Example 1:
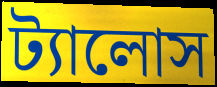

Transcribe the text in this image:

ট্যালোস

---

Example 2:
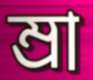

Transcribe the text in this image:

ম্রা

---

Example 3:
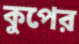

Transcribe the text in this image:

কুপের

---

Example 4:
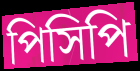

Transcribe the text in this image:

পিসিপি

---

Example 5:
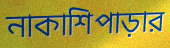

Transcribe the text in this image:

নাকাশিপাড়ার